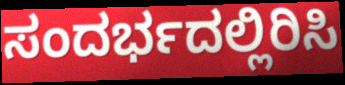
ಸಂದರ್ಭದಲ್ಲಿರಿಸಿ